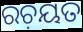
ରଚ଼ୟତ